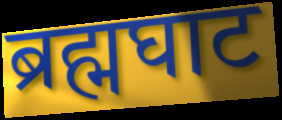
ब्रह्मघाट